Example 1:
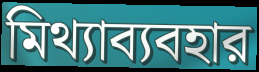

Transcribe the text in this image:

মিথ্যাব্যবহার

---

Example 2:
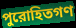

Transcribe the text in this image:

পুরোহিতগণ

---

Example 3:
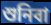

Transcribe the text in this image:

শুনিবা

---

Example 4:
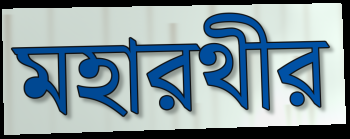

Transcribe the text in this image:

মহারথীর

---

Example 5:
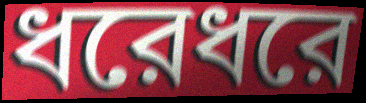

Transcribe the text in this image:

ধরেধরে